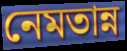
নেমতান্ন